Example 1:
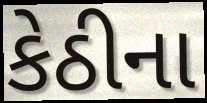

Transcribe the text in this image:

કેઠીના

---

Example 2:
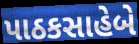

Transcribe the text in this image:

પાઠકસાહેબે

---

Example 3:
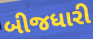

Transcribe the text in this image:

બીજધારી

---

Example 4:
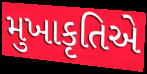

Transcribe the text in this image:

મુખાકૃતિએ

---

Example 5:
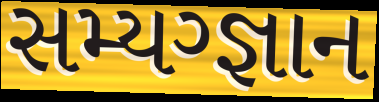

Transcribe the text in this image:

સમ્યગ્જ્ઞાન